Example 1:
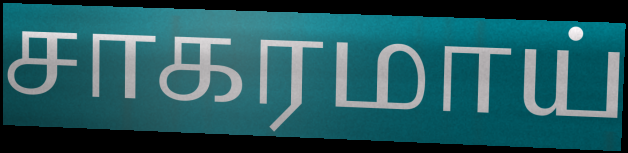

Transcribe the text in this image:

சாகரமாய்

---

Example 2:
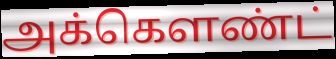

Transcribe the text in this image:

அக்கெளண்ட்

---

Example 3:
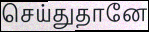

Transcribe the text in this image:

செய்துதானே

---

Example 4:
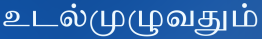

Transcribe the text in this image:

உடல்முழுவதும்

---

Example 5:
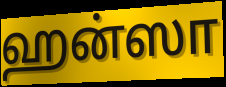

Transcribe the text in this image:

ஹன்ஸா